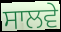
ਸਾਲਵੇ